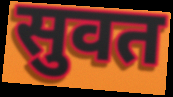
सुवत